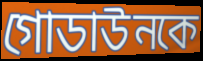
গোডাউনকে